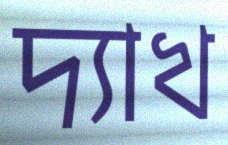
দ্যাখ